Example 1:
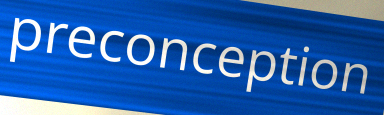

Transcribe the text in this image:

preconception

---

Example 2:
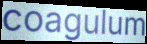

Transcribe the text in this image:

coagulum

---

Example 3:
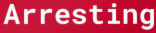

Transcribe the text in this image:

Arresting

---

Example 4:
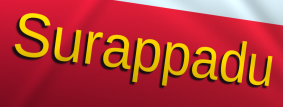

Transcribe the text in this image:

Surappadu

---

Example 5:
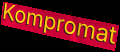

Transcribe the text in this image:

Kompromat